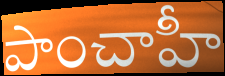
పాంచాహీ